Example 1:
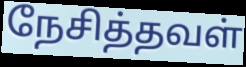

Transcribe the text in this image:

நேசித்தவள்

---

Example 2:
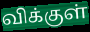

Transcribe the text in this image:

விக்குள்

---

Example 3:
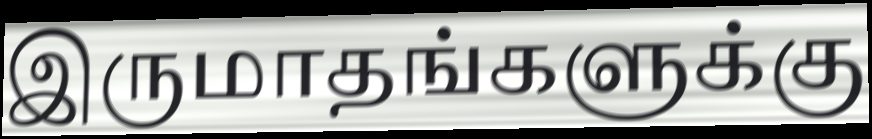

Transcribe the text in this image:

இருமாதங்களுக்கு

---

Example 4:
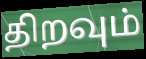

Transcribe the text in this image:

திறவும்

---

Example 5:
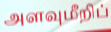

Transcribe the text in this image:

அளவுமீறிப்